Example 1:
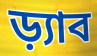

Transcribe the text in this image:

ড়্যাব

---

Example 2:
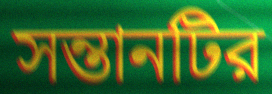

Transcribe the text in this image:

সন্তানটির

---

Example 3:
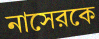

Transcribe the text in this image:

নাসেরকে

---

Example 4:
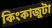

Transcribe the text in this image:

কিংকাজুটা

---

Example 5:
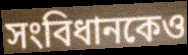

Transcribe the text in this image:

সংবিধানকেও